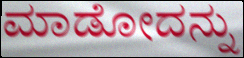
ಮಾಡೋದನ್ನು